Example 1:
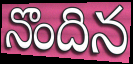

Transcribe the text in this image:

నొందిన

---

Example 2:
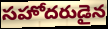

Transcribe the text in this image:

సహోదరుడైన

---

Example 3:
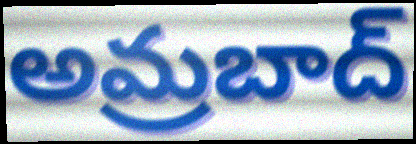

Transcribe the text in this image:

అమ్రబాద్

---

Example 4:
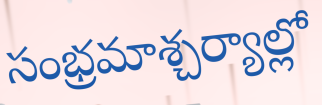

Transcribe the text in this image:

సంభ్రమాశ్చర్యాల్లో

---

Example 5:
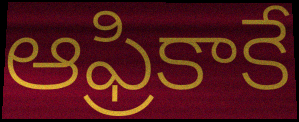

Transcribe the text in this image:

ఆఫ్రికాకే